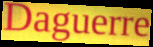
Daguerre